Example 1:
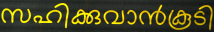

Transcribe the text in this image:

സഹിക്കുവാൻകൂടി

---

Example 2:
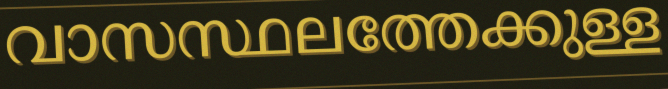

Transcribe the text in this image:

വാസസ്ഥലത്തേക്കുള്ള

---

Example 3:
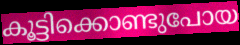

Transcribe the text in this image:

കൂട്ടിക്കൊണ്ടുപോയ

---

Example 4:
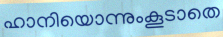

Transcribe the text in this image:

ഹാനിയൊന്നുംകൂടാതെ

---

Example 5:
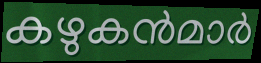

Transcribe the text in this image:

കഴുകൻമാർ